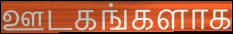
ஊடகங்களாக